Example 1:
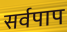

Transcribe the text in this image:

सर्वपाप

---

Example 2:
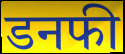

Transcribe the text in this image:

डनफी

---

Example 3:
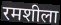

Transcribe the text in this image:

रमशीला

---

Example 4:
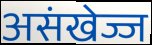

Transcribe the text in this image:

असंखेज्ज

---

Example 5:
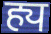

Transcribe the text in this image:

ह्य